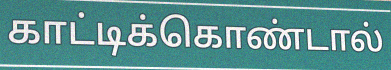
காட்டிக்கொண்டால்